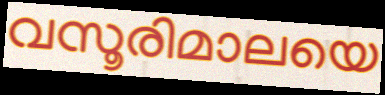
വസൂരിമാലയെ